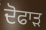
ਦੋਫਾੜ